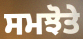
ਸਮਝੋਤੇ